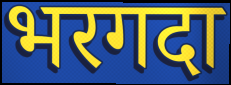
भरगदा